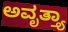
ಅವೃತ್ತ್ಯಾ